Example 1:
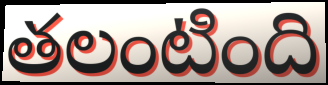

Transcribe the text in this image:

తలంటింది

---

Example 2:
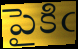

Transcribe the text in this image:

పైకిఁ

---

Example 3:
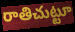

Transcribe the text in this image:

రాతిచుట్టూ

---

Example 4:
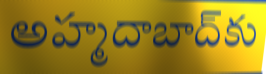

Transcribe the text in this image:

అహ్మదాబాద్‌కు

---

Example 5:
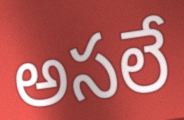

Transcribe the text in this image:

అసలే